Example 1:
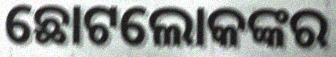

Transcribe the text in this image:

ଛୋଟଲୋକଙ୍କର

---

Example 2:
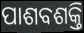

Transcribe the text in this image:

ପାଶବଶକ୍ତି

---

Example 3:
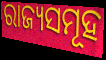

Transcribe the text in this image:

ରାଜ୍ୟସମୂହ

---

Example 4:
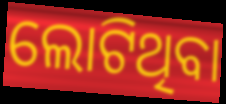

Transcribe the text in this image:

ଲୋଟିଥିବା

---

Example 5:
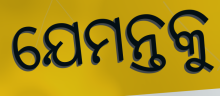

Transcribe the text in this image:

ଯେମନ୍ତକୁ